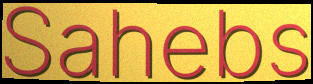
Sahebs